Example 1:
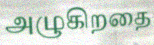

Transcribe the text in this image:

அழுகிறதை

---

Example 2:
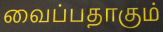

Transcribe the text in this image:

வைப்பதாகும்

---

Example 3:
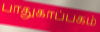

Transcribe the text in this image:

பாதுகாப்பகம்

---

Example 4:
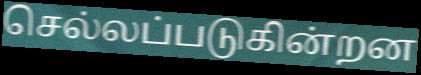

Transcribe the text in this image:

செல்லப்படுகின்றன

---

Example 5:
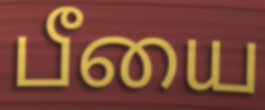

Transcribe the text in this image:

பீயை